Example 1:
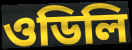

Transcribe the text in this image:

ওডিলি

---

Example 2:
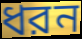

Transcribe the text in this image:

ধরন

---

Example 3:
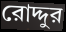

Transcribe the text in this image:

রোদ্দুর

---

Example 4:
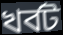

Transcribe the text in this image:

খর্বট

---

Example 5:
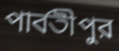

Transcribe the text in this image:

পার্বতীপুর